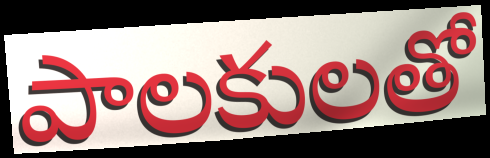
పాలకులతో